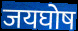
जयघोष